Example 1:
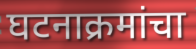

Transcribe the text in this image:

घटनाक्रमांचा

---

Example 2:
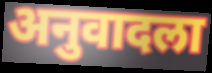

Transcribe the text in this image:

अनुवादला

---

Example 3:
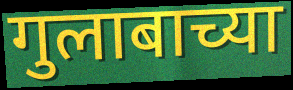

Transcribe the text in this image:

गुलाबाच्या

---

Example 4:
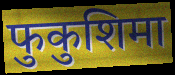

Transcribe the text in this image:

फुकुशिमा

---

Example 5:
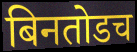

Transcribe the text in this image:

बिनतोडच